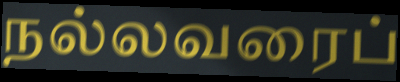
நல்லவரைப்